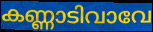
കണ്ണാടിവാവേ